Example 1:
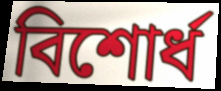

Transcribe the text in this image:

বিশোর্ধ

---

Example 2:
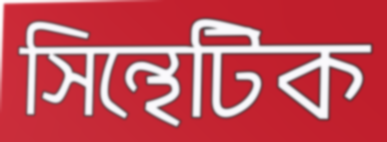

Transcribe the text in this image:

সিন্থেটিক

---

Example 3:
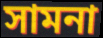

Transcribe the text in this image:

সামনা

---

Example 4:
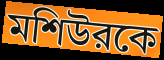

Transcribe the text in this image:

মশিউরকে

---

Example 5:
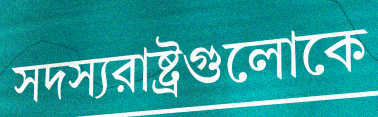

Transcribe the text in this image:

সদস্যরাষ্ট্রগুলোকে